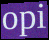
opi